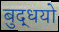
बुद्धयो